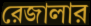
রেজালার